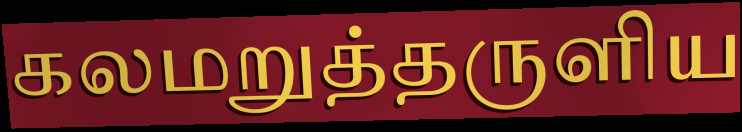
கலமறுத்தருளிய